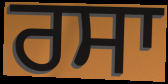
ਰਸਾ